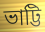
ভাট্টি